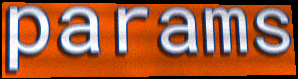
params